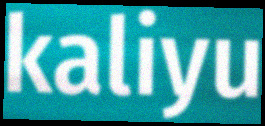
kaliyu